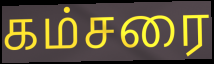
கம்சரை